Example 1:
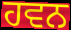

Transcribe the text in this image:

ਹਵਨ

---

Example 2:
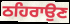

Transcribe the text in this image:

ਠਹਿਰਾਉਣ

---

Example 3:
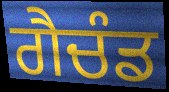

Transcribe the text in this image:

ਗੈਚੰਡ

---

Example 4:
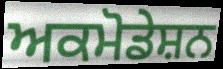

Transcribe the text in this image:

ਅਕਮੋਡੇਸ਼ਨ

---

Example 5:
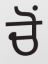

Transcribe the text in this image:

ਚੋਂ